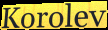
Korolev